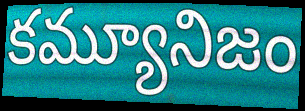
కమ్యూనిజం